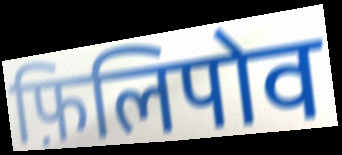
फ़िलिपोव